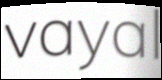
vayal